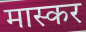
मास्कर